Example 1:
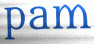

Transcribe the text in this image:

pam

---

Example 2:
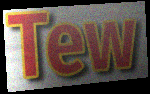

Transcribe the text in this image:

Tew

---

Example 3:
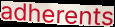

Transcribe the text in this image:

adherents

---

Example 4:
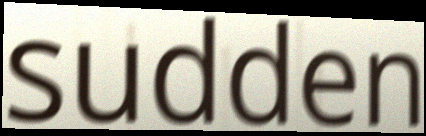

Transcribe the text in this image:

sudden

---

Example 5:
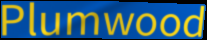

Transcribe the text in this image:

Plumwood